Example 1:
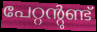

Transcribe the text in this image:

പേറ്റന്റുണ്ട്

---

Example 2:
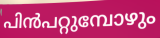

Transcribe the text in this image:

പിൻപറ്റുമ്പോഴും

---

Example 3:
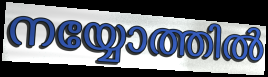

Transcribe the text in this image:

നയ്യോത്തിൽ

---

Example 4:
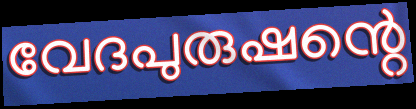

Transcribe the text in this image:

വേദപുരുഷന്റെ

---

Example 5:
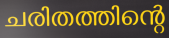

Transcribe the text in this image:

ചരിതത്തിന്റെ